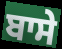
ਬਾਸੇ